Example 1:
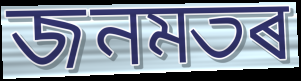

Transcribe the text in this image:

জনমতৰ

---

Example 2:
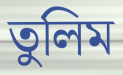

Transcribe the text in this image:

তুলিম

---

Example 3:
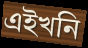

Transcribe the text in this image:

এইখনি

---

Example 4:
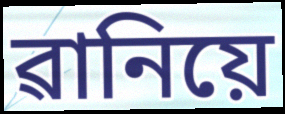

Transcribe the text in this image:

ৱানিয়ে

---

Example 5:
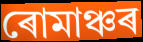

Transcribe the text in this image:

ৰোমাঞ্চৰ